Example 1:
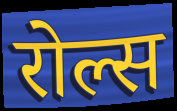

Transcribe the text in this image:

रोल्स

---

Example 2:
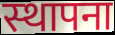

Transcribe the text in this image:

स्‍थापना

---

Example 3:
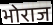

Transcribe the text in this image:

भोराज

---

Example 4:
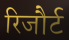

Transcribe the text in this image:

रिजौर्ट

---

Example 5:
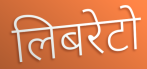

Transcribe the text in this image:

लिबरेटो